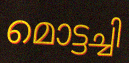
മൊട്ടച്ചി